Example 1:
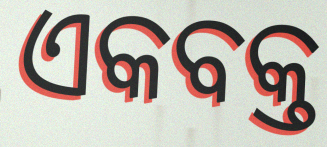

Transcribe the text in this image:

ଏକବକ୍ତ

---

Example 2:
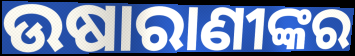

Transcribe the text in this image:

ଉଷାରାଣୀଙ୍କର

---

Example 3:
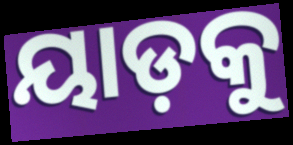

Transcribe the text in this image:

ୟାଡ଼କୁ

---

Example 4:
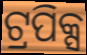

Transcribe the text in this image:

ଟ୍ରପିକ୍ସ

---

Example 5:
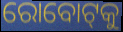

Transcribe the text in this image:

ରୋବୋଟ୍‌କୁ